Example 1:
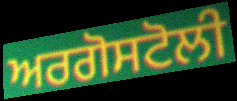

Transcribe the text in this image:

ਅਰਗੋਸਟੋਲੀ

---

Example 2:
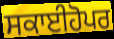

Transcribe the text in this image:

ਸਕਾਈਹੋਪਰ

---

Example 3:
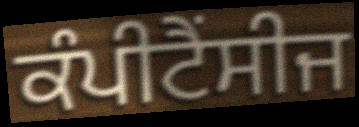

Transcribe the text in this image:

ਕੰਪੀਟੈਂਸੀਜ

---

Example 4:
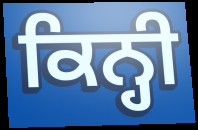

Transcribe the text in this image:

ਕਿਨ੍ਹੀ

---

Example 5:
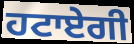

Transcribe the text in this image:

ਹਟਾਏਗੀ